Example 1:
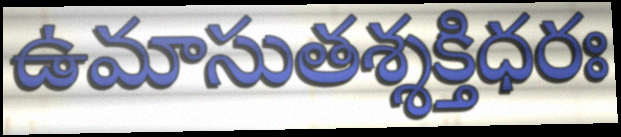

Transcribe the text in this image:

ఉమాసుతశ్శక్తిధరః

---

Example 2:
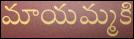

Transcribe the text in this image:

మాయమ్మకి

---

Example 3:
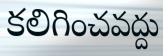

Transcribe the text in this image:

కలిగించవద్దు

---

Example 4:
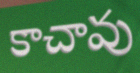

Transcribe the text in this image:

కాచావు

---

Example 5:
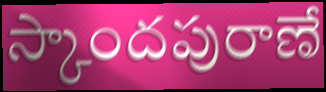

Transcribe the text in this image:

స్కాందపురాణే